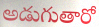
అడుగుతారో